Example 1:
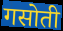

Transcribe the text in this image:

गसोती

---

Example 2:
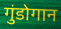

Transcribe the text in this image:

गुंडोगान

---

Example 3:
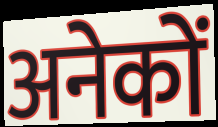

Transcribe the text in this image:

अनेकों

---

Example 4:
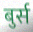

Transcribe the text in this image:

बुर्स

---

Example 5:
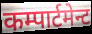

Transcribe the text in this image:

कम्पार्टमेन्ट